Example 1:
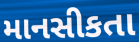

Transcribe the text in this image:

માનસીકતા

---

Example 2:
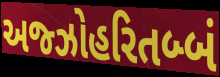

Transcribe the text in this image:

અજ્ઝોહરિતબ્બં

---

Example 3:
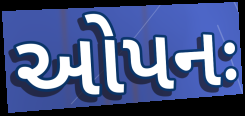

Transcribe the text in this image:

ઓપનઃ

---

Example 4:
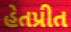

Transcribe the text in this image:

હેતપ્રીત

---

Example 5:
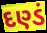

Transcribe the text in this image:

દણ્ડં